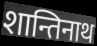
शान्तिनाथ